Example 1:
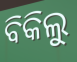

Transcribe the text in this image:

ବିକିଲୁ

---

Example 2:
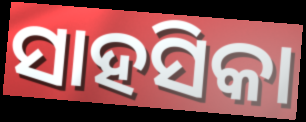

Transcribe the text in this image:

ସାହସିକା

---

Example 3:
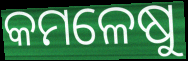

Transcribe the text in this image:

କମଳେଷୁ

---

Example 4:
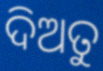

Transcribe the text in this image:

ଦିଅତୁ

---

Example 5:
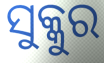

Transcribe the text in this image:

ସୁକ୍କୁର